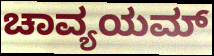
ಚಾವ್ಯಯಮ್